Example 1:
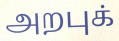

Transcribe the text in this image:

அறபுக்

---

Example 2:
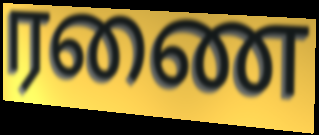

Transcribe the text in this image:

ரணை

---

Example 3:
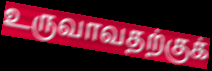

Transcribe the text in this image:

உருவாவதற்குக்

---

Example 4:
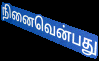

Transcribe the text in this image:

நினைவென்பது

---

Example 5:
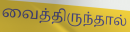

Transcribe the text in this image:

வைத்திருந்தால்